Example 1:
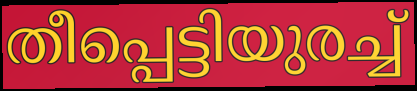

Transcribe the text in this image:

തീപ്പെട്ടിയുരച്ച്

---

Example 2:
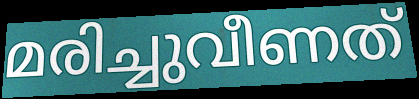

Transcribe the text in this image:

മരിച്ചുവീണത്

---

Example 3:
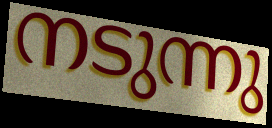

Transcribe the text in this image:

നടുന്നു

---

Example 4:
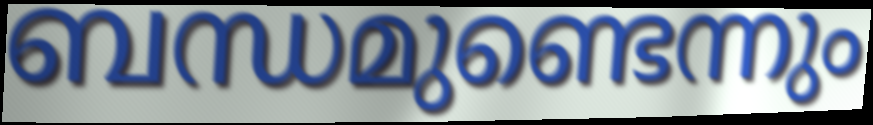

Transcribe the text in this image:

ബന്ധമുണ്ടെന്നും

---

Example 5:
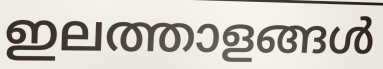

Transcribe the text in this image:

ഇലത്താളങ്ങൾ